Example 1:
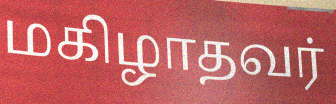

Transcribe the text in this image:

மகிழாதவர்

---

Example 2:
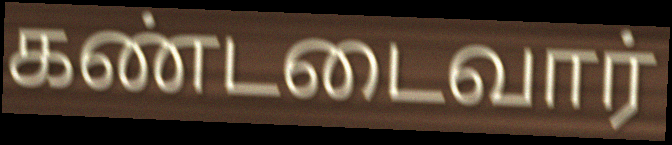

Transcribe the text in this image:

கண்டடைவார்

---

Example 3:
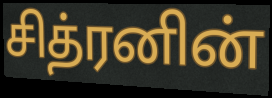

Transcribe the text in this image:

சித்ரனின்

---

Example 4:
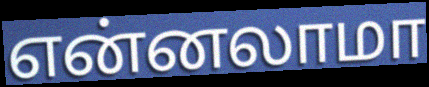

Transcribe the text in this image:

என்னலாமா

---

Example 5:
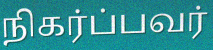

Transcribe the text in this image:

நிகர்ப்பவர்